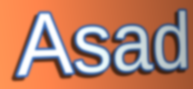
Asad